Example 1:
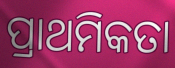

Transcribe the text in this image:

ପ୍ରାଥମିକତା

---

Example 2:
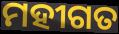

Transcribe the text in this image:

ମହୀଗତ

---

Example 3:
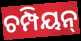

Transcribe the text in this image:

ଚମ୍ପିୟନ୍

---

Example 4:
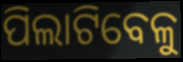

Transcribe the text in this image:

ପିଲାଟିବେଳୁ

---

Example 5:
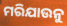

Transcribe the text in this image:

ମରିଯାଉନୁ